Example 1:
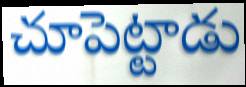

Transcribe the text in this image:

చూపెట్టాడు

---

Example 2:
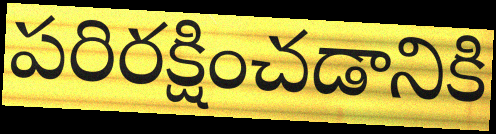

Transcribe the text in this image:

పరిరక్షించడానికి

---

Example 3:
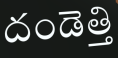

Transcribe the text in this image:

దండెత్తి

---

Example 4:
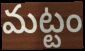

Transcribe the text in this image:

మట్టం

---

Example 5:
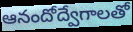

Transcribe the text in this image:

ఆనందోద్వేగాలతో